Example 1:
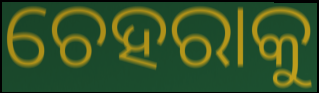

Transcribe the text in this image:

ଚେହରାକୁ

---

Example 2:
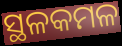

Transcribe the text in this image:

ସ୍ଥଳକମଳ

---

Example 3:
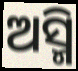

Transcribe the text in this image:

ଅସ୍ମି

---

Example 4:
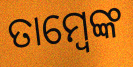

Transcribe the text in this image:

ତାମ୍ବେଙ୍କ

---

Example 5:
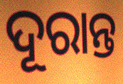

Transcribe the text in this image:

ଦୂରାନ୍ତ